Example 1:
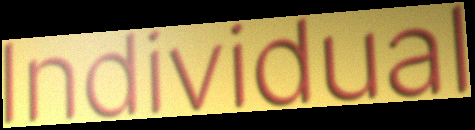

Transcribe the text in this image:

Individual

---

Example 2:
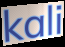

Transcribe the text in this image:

kali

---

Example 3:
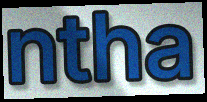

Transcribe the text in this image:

ntha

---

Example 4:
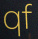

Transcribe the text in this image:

qf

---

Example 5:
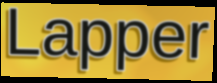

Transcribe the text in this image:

Lapper